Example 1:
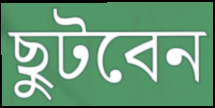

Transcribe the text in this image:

ছুটবেন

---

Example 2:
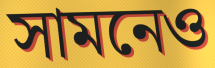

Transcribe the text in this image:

সামনেও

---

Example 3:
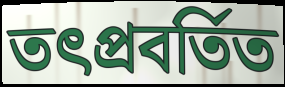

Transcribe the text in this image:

তৎপ্রবর্তিত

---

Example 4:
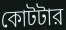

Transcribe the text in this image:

কোটটার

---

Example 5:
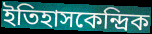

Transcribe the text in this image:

ইতিহাসকেন্দ্রিক